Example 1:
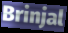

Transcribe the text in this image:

Brinjal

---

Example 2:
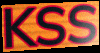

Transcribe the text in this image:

KSS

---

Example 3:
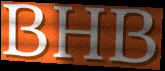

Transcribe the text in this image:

BHB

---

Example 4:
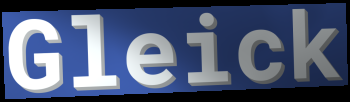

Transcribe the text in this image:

Gleick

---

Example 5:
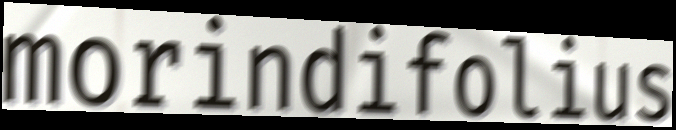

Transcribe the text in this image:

morindifolius